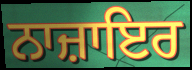
ਨਾਜ਼ਾਇਰ